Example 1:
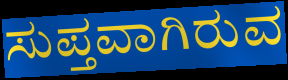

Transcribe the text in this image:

ಸುಪ್ತವಾಗಿರುವ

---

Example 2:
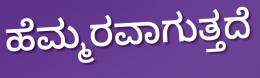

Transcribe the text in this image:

ಹೆಮ್ಮರವಾಗುತ್ತದೆ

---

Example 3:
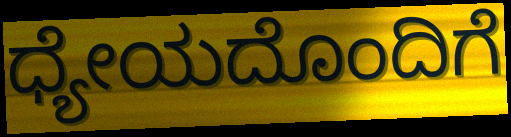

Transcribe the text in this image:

ಧ್ಯೇಯದೊಂದಿಗೆ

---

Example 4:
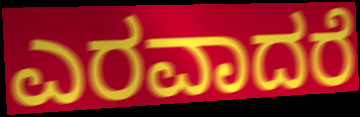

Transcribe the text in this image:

ಎರವಾದರೆ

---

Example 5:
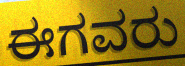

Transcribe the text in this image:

ಈಗವರು